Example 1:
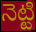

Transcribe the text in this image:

నెట్టి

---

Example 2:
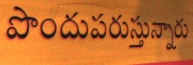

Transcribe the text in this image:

పొందుపరుస్తున్నారు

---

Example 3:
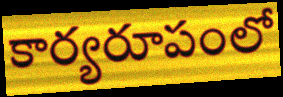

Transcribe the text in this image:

కార్యరూపంలో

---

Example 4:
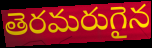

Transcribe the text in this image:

తెరమరుగైన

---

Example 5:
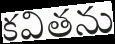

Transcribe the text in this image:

కవితను